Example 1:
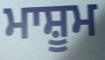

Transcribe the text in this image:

ਮਾਸ਼ੂਮ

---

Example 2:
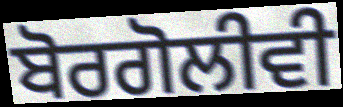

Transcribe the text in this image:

ਬੋਰਗੋਲੀਵੀ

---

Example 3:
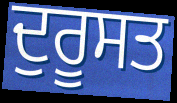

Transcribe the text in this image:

ਦੁਰੂਸਤ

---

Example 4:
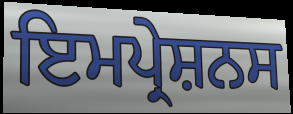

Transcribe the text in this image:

ਇਮਪ੍ਰੇਸ਼ਨਸ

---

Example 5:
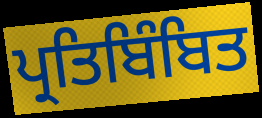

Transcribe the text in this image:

ਪ੍ਰਤਿਬਿੰਬਿਤ